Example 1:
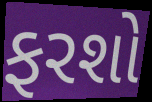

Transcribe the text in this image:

ફરશો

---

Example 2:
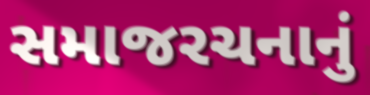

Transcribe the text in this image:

સમાજરચનાનું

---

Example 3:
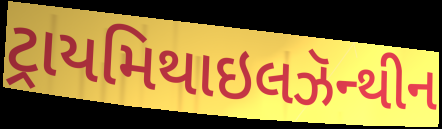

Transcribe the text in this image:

ટ્રાયમિથાઇલઝૅન્થીન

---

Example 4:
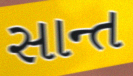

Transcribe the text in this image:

સાન્ત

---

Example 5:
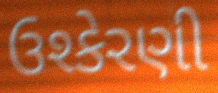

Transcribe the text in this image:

ઉશ્કેરણી